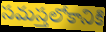
సమస్తలోకానికి